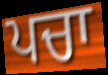
ਪਚਾ